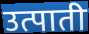
उत्पाती